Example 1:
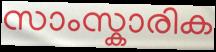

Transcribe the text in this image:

സാംസ്കാരിക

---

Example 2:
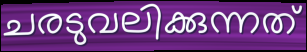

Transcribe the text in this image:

ചരടുവലിക്കുന്നത്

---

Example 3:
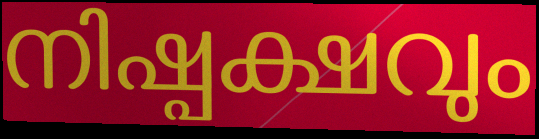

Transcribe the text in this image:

നിഷ്പക്ഷവും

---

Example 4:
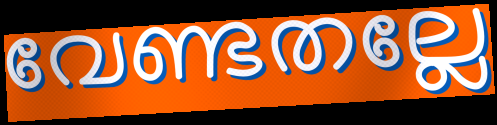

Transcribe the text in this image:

വേണ്ടതല്ലേ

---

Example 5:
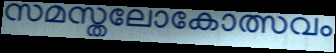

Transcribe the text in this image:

സമസ്തലോകോത്സവം